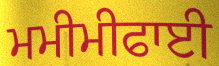
ਮਮੀਮੀਫਾਈ